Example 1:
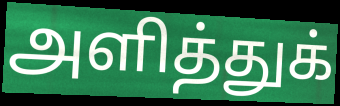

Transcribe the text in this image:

அளித்துக்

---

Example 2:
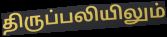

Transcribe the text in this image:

திருப்பலியிலும்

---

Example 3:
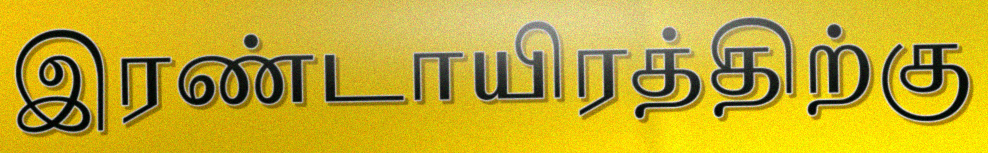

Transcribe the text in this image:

இரண்டாயிரத்திற்கு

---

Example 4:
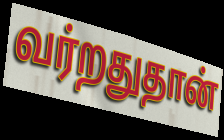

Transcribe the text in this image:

வர்றதுதான்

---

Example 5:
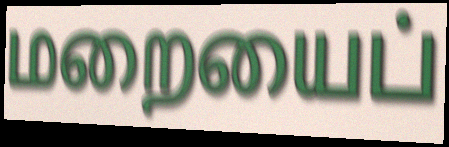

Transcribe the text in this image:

மறையைப்